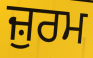
ਜ਼ੁਰਮ